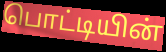
பொட்டியின்